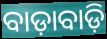
ବାଡ଼ାବାଡ଼ି